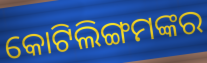
କୋଟିଲିଙ୍ଗମଙ୍କର